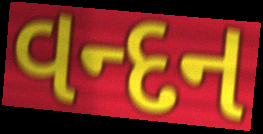
વન્દન